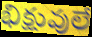
భిక్షువులే